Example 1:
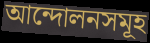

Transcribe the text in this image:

আন্দোলনসমূহ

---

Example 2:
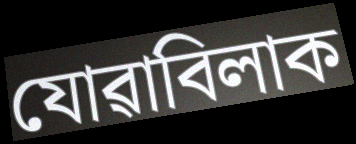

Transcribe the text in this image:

যোৱাবিলাক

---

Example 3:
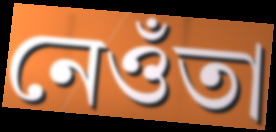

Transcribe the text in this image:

নেওঁতা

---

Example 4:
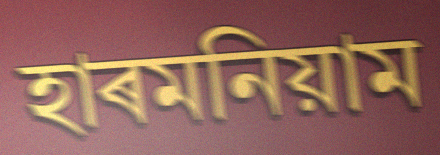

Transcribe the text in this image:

হাৰমনিয়াম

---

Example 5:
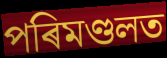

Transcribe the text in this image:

পৰিমণ্ডলত